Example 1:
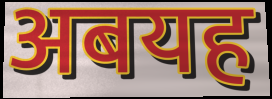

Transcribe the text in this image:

अबयह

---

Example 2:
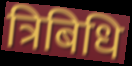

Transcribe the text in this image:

त्रिबिधि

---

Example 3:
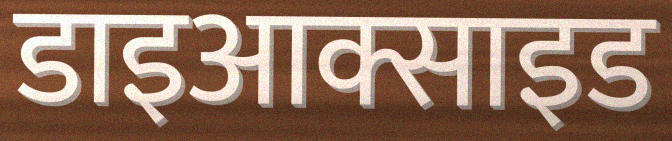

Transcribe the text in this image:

डाइआक्साइड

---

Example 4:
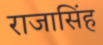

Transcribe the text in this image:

राजासिंह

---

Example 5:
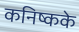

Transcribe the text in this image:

कनिष्कके